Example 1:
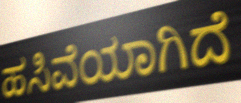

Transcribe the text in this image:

ಹಸಿವೆಯಾಗಿದೆ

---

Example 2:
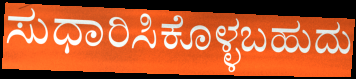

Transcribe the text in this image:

ಸುಧಾರಿಸಿಕೊಳ್ಳಬಹುದು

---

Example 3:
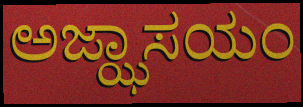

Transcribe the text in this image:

ಅಜ್ಝಾಸಯಂ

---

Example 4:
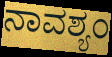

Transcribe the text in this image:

ನಾವಶ್ಯಂ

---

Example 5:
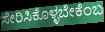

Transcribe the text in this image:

ಸೇರಿಸಿಕೊಳ್ಳಬೇಕೆಂಬ